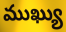
ముఖ్యు